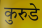
कुरुडे